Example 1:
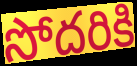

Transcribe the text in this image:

సోదరికి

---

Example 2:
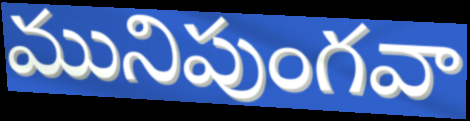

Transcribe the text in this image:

మునిపుంగవా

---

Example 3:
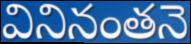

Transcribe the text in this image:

వినినంతనె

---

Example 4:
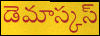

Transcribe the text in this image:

డెమాస్కస్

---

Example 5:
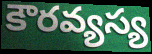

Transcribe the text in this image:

కౌరవ్యస్య